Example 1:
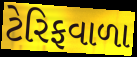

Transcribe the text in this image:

ટેરિફવાળા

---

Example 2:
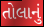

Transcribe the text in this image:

તોલાનું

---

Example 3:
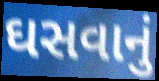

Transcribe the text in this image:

ઘસવાનું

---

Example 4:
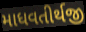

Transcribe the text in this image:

માધવતીર્થજી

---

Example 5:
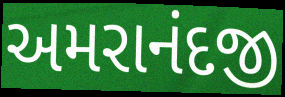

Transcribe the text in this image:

અમરાનંદજી